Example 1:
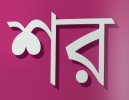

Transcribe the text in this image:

শর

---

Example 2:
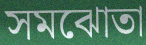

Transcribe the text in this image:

সমঝোতা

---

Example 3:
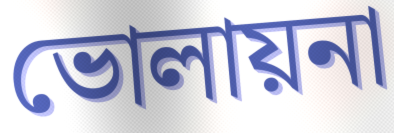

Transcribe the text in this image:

ভোলায়না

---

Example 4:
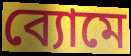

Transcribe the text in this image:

ব্যোমে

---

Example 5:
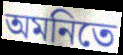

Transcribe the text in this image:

অমনিতে